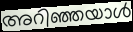
അറിഞ്ഞയാൾ